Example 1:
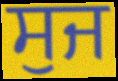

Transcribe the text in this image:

ਸੁਜ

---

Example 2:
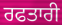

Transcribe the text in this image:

ਰਫਤਾਰੀ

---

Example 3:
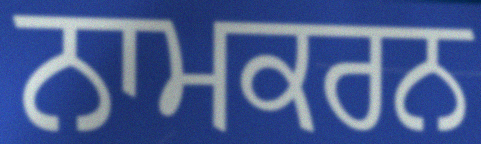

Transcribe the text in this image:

ਨਾਮਕਰਨ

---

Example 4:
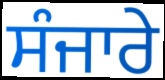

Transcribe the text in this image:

ਸੰਜਾਰੇ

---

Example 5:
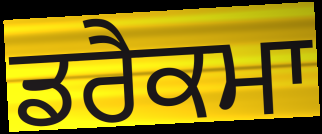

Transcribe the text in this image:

ਡਰੈਕਮਾ